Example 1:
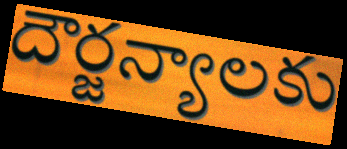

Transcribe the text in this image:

దౌర్జన్యాలకు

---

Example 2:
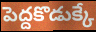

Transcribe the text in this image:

పెద్దకొడుక్కే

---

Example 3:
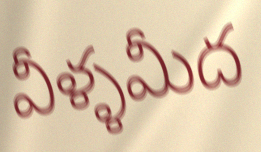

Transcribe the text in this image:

వీళ్ళమీద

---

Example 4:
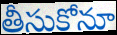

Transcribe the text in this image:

తీసుకోనూ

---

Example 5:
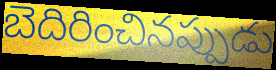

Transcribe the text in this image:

బెదిరించినప్పుడు